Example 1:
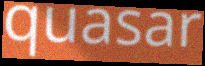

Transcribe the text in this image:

quasar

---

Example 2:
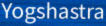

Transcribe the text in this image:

Yogshastra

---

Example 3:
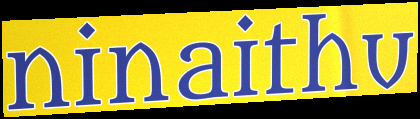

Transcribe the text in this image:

ninaithu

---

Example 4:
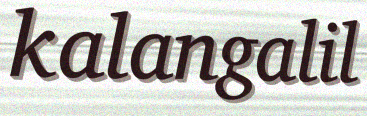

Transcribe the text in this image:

kalangalil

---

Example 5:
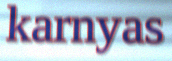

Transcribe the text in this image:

karnyas